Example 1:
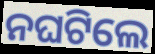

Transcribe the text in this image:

ନଘଟିଲେ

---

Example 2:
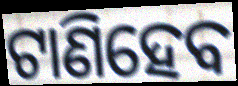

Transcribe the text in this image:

ଟାଣିହେବ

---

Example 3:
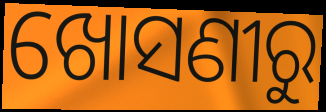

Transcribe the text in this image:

ଖୋସଣୀରୁ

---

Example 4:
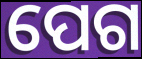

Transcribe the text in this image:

ପେଗ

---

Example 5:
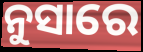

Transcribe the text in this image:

ନୁସାରେ